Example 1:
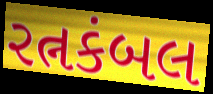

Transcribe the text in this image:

રત્નકંબલ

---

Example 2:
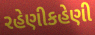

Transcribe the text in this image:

રહેણીકહેણી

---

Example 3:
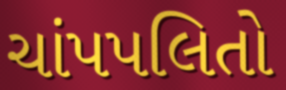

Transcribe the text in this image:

ચાંપપલિતો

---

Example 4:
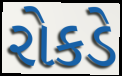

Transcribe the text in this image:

રોકડે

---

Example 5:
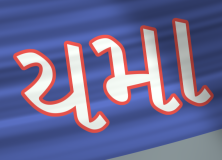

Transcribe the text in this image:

યમા